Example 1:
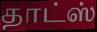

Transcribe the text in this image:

தாட்ஸ்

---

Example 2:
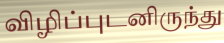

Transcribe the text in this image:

விழிப்புடனிருந்து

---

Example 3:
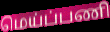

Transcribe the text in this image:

மெய்ப்பணி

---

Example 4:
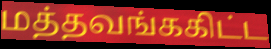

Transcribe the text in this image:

மத்தவங்ககிட்ட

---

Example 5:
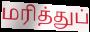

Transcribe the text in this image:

மரித்துப்